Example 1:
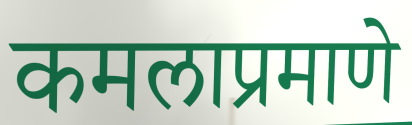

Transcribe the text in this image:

कमलाप्रमाणे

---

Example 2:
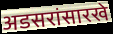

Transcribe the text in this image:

अडसरांसारखे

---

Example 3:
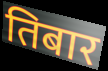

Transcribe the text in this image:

तिबार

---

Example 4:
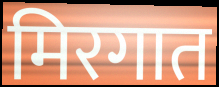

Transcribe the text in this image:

मिरगात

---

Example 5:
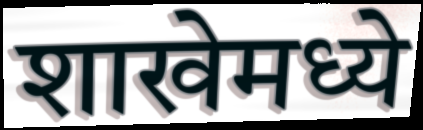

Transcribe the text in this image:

शाखेमध्ये